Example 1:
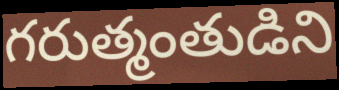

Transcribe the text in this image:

గరుత్మంతుడిని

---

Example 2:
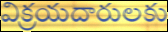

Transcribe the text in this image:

విక్రయదారులకు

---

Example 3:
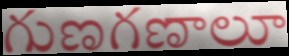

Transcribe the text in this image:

గుణగణాలూ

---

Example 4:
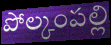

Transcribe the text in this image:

పోల్కంపల్లి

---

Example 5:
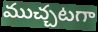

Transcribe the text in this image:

ముచ్చటగా